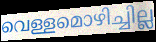
വെള്ളമൊഴിച്ചില്ല